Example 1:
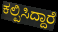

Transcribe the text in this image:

ಕಲ್ಪಿಸಿದ್ದಾರೆ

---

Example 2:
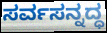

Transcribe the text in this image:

ಸರ್ವಸನ್ನದ್ಧ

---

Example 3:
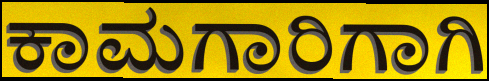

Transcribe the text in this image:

ಕಾಮಗಾರಿಗಾಗಿ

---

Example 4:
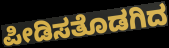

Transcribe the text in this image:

ಪೀಡಿಸತೊಡಗಿದ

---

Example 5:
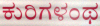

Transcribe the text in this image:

ಕುರಿಗಳಂಥ